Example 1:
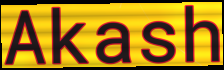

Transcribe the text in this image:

Akash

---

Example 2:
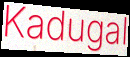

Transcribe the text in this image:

Kadugal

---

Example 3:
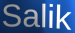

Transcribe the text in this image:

Salik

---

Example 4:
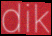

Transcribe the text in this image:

dik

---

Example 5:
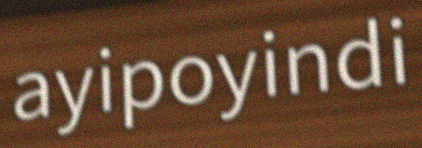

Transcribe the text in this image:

ayipoyindi